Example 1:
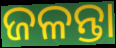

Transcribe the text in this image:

ଜଳନ୍ତା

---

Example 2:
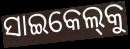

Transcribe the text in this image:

ସାଇକେଲ୍‌କୁ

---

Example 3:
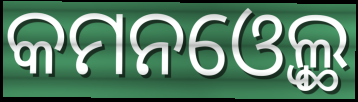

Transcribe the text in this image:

କମନଓ୍ବେଲ୍ଥ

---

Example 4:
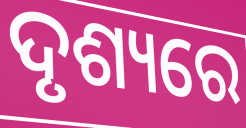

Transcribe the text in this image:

ଦୃଶ୍ୟରେ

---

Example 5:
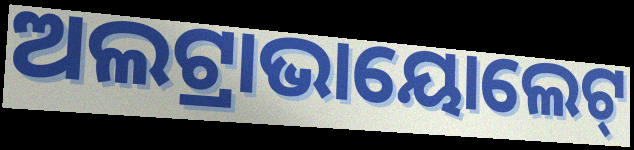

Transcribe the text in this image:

ଅଲଟ୍ରାଭାୟୋଲେଟ୍